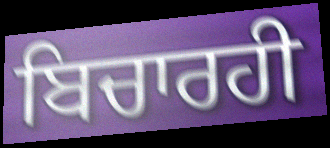
ਬਿਚਾਰਹੀ